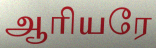
ஆரியரே